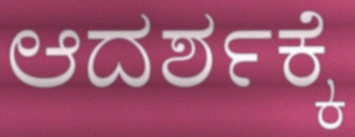
ಆದರ್ಶಕ್ಕೆ